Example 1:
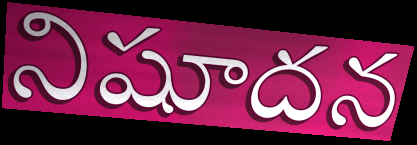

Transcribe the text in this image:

నిషూదన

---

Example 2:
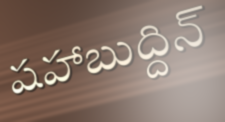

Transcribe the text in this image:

షహాబుద్దిన్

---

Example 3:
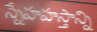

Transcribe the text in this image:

స్నేహహస్తాన్ని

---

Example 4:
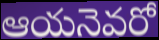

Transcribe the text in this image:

ఆయనెవరో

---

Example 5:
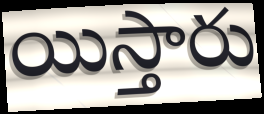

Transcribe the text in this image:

యిస్తారు